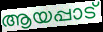
ആയപ്പാട്